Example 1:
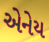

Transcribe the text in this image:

એનેય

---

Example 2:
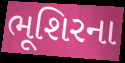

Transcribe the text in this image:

ભૂશિરના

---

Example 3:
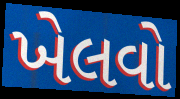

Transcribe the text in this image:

ખેલવો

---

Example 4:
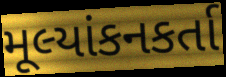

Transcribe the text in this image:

મૂલ્યાંકનકર્તા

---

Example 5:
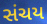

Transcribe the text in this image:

સંચય